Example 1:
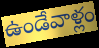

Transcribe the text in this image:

ఉండేవాళ్లం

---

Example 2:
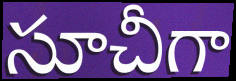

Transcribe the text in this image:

సూచీగా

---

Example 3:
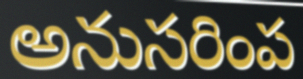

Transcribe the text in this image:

అనుసరింప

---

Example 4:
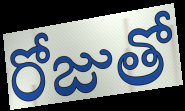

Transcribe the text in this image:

రోజుతో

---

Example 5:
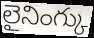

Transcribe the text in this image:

లైనింగ్కు